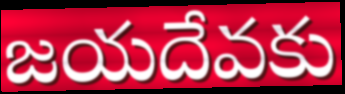
జయదేవకు